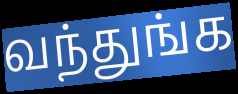
வந்துங்க